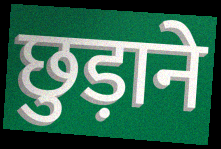
छुड़ाने